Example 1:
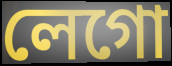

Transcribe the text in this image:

লেগো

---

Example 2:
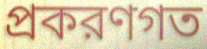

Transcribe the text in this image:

প্রকরণগত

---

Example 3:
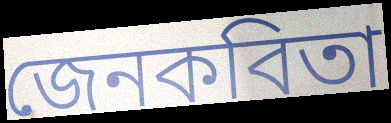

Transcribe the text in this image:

জেনকবিতা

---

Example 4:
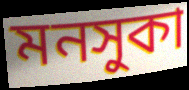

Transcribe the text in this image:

মনসুকা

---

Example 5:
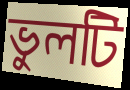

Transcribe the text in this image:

ভুলটি